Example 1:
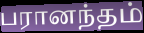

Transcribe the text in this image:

பரானந்தம்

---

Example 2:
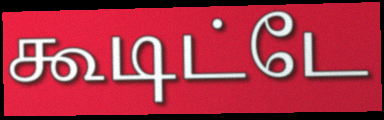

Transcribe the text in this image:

கூடிட்டே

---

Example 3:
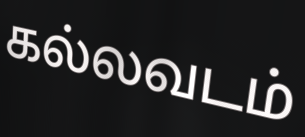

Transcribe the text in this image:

கல்லவடம்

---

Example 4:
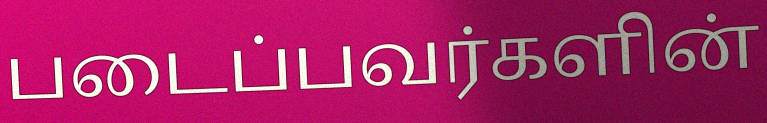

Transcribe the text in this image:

படைப்பவர்களின்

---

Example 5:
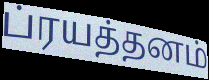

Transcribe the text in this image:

ப்ரயத்தனம்